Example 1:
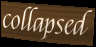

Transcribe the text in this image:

collapsed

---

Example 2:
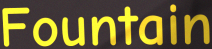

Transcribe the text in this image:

Fountain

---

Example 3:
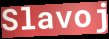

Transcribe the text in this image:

Slavoj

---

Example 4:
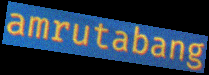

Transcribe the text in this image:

amrutabang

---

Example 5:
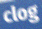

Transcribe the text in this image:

clog